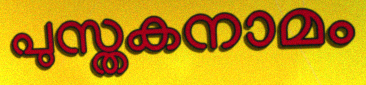
പുസ്തകനാമം